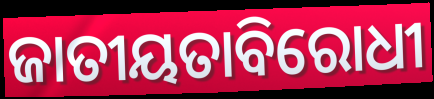
ଜାତୀୟତାବିରୋଧୀ